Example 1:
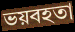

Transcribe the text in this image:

ভয়বহতা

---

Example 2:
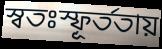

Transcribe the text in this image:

স্বতঃস্ফূর্ততায়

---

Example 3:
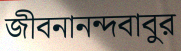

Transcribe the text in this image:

জীবনানন্দবাবুর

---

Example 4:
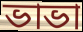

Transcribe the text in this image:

ভাভা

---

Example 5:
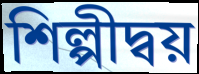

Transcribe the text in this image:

শিল্পীদ্বয়